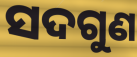
ସଦଗୁଣ